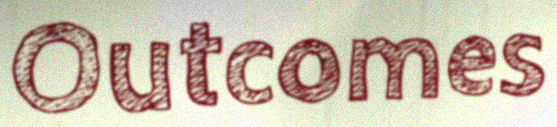
Outcomes